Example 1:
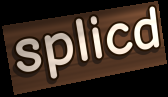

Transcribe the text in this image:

splicd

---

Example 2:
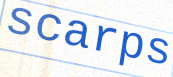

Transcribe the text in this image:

scarps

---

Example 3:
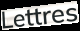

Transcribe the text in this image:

Lettres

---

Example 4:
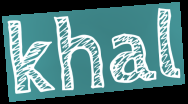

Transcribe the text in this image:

khal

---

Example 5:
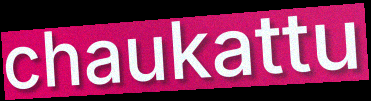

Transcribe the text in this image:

chaukattu